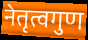
नेतृत्वगुण